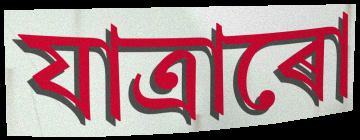
যাত্ৰাৰো